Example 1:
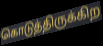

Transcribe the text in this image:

கொடுத்திருக்கிற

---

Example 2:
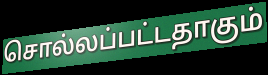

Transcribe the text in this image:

சொல்லப்பட்டதாகும்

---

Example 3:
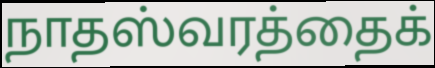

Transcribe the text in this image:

நாதஸ்வரத்தைக்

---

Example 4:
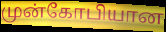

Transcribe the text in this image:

முன்கோபியான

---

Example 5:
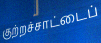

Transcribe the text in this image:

குற்றச்சாட்டைப்